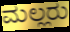
ಮಲ್ಲರು